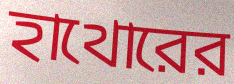
হাথোরের